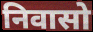
निवासो